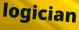
logician